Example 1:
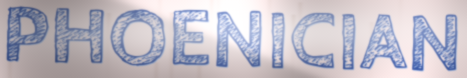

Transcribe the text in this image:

PHOENICIAN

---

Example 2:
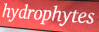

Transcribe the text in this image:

hydrophytes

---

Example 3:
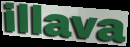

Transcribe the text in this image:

illava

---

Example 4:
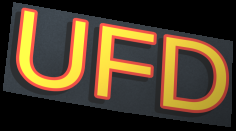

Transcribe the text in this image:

UFD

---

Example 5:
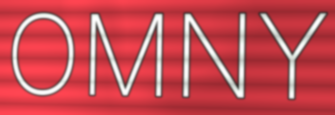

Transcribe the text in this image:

OMNY